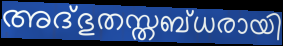
അദ്ഭുതസ്തബ്ധരായി